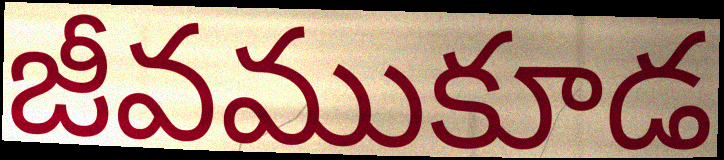
జీవముకూడ